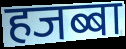
हजब्बा